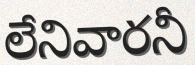
లేనివారనీ